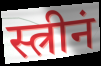
स्त्रीनं